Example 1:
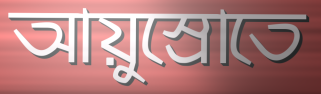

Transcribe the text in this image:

আয়ুস্রোতে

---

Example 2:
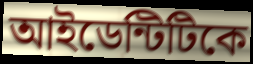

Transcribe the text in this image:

আইডেন্টিটিকে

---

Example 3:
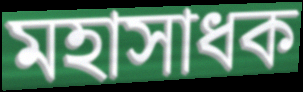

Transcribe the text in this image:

মহাসাধক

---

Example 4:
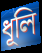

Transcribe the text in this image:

ধূলি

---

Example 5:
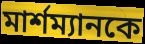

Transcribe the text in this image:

মার্শম্যানকে